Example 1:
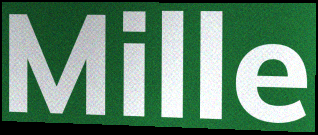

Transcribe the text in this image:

Mille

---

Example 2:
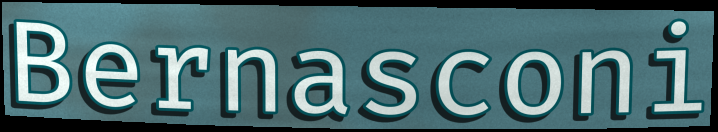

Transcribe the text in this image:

Bernasconi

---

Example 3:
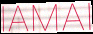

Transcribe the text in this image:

IAMAI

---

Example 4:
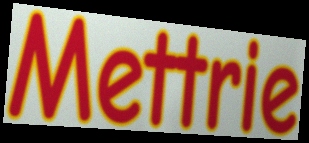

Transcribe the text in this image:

Mettrie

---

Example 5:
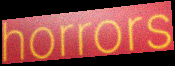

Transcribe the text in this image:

horrors